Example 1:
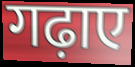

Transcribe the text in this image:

गढ़ाए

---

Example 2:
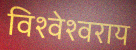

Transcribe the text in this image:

विश्वेश्वराय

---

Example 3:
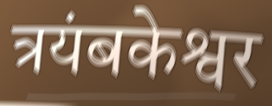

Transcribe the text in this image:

त्रयंबकेश्वर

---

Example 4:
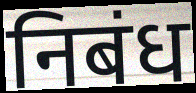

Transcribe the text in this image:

निबंध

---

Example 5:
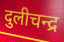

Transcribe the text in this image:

दुलीचन्द्र